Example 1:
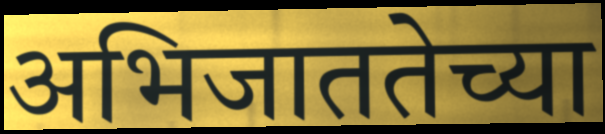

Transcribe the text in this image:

अभिजाततेच्या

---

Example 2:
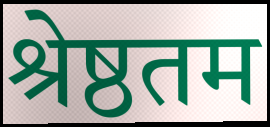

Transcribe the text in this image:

श्रेष्ठतम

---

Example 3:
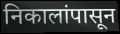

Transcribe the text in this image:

निकालांपासून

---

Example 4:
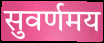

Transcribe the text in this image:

सुवर्णमय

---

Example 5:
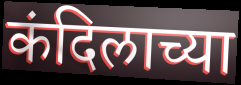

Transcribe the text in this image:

कंदिलाच्या